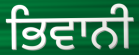
ਭਿਵਾਨੀ